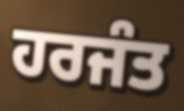
ਹਰਜੰਤ